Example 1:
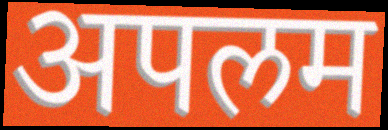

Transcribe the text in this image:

अपलम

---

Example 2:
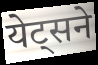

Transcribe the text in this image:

येट्सने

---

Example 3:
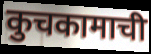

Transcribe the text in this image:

कुचकामाची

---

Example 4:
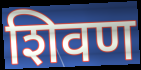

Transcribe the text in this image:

शिवण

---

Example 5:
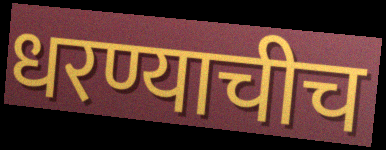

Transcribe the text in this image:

धरण्याचीच